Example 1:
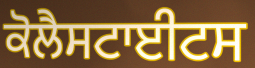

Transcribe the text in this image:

ਕੋਲੈਸਟਾਈਟਸ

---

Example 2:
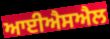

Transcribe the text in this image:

ਆਈਐਸਐਲ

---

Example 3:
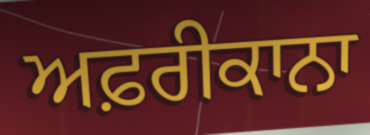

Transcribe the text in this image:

ਅਫ਼ਰੀਕਾਨਾ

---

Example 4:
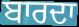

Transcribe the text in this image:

ਬਾਰਦਾ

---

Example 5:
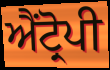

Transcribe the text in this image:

ਐਂਟ੍ਰੋਪੀ